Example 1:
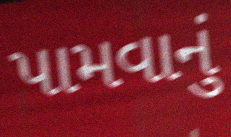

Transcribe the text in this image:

પામવાનું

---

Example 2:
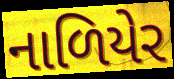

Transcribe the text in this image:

નાળિયેર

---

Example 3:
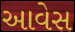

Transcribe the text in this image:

આવેસ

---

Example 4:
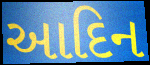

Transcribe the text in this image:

આદિન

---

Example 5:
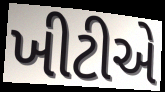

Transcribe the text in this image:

ખીટીએ